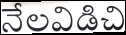
నేలవిడిచి